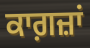
ਕਾਗ਼ਜ਼ਾਂ